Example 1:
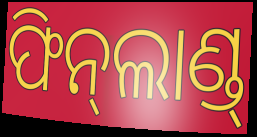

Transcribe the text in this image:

ଫିନ୍‌ଲାଣ୍ଡ୍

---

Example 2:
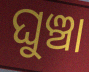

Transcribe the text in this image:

ଘୁଞ୍ଚା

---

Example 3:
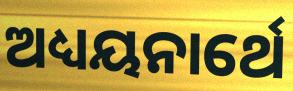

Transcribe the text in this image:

ଅଧ୍ୟୟନାର୍ଥେ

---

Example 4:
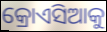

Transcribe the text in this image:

କ୍ରୋଏସିଆକୁ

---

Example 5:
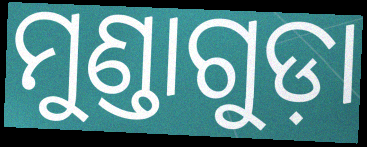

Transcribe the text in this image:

ମୁଣ୍ଡାଗୁଡ଼ା